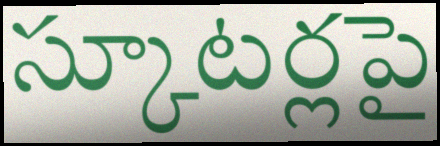
స్కూటర్లపై